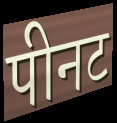
पीनट